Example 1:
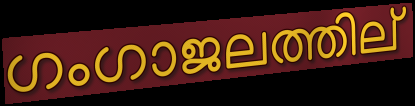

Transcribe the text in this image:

ഗംഗാജലത്തില്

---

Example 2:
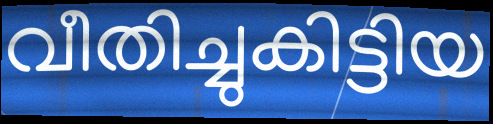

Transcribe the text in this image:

വീതിച്ചുകിട്ടിയ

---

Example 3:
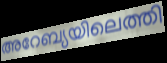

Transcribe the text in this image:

അറേബ്യയിലെത്തി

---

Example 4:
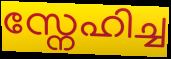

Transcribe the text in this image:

സ്നേഹിച്ച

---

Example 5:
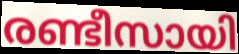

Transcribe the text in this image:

രണ്ടീസായി